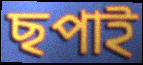
ছপাই